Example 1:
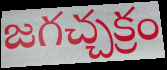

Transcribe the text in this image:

జగచ్చక్రం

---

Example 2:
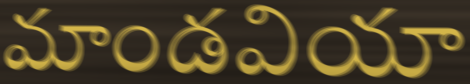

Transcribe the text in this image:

మాండవియా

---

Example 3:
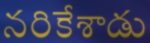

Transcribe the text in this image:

నరికేశాడు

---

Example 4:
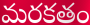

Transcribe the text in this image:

మరకతం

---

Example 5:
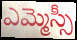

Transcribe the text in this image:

ఎమ్మెస్సీ